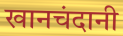
खानचंदानी